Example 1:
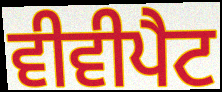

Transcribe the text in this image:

ਵੀਵੀਪੈਟ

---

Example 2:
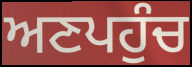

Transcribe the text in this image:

ਅਣਪਹੁੰਚ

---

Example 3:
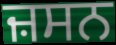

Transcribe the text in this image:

ਜ਼ਸਨ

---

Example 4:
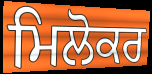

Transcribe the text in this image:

ਮਿਲੋਕਰ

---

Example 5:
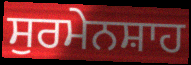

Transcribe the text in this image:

ਸੁਰਮੇਨਸ਼ਾਹ